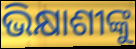
ଭିକ୍ଷାଶୀଙ୍କୁ